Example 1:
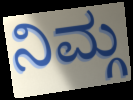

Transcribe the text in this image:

ನಿಮ್ಗ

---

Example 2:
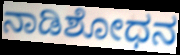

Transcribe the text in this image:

ನಾಡಿಶೋಧನ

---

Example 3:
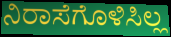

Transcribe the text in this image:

ನಿರಾಸೆಗೊಳಿಸಿಲ್ಲ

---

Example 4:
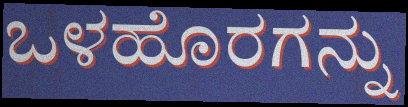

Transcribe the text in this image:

ಒಳಹೊರಗನ್ನು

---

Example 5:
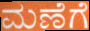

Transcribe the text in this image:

ಮಣೆಗೆ